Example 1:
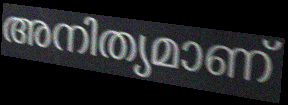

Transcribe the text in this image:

അനിത്യമാണ്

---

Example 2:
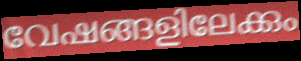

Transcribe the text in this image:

വേഷങ്ങളിലേക്കും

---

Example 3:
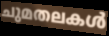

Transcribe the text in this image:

ചുമതലകൾ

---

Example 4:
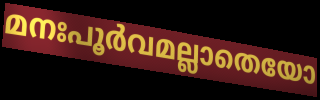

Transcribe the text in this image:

മനഃപൂർവമല്ലാതെയോ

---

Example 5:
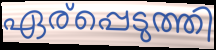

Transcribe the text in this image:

ഏര്പ്പെടുത്തി